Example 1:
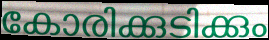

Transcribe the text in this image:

കോരിക്കുടിക്കും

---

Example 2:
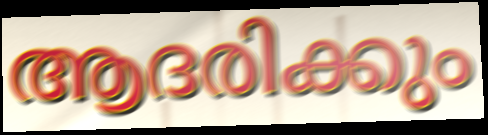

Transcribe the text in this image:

ആദരിക്കും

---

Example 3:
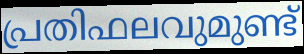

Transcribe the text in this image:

പ്രതിഫലവുമുണ്ട്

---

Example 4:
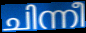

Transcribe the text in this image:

ചിന്നീ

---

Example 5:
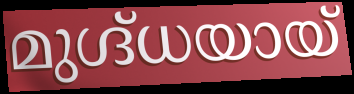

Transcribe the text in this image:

മുഗ്ദ്ധയായ്